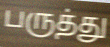
பருத்து